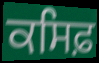
ਕਸਿਫ਼